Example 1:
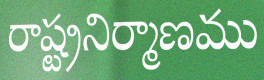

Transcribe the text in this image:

రాష్ట్రనిర్మాణము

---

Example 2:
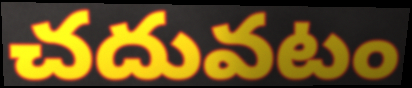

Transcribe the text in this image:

చదువటం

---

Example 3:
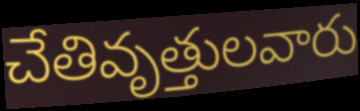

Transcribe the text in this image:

చేతివృత్తులవారు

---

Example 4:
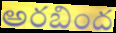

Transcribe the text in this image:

అరబింద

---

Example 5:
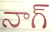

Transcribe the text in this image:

నాగ్